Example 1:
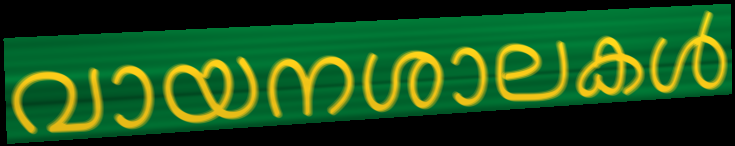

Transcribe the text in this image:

വായനശാലകൾ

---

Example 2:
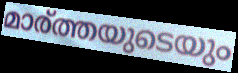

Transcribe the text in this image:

മാര്ത്തയുടെയും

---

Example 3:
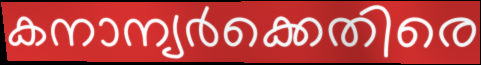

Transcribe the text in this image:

കനാന്യർക്കെതിരെ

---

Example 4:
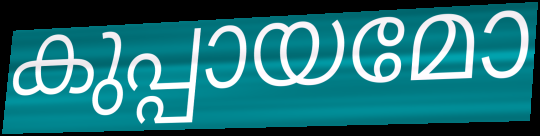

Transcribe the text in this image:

കുപ്പായമോ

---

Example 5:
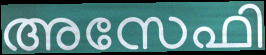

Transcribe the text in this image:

അസേഫി